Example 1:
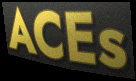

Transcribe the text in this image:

ACEs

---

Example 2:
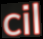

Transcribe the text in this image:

cil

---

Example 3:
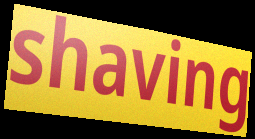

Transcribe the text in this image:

shaving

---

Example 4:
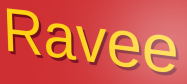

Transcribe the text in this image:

Ravee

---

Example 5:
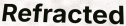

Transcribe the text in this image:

Refracted